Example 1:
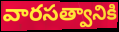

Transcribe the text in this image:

వారసత్వానికి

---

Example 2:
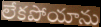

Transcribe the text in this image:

లేకపోయాను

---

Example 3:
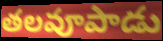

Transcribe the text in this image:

తలవూపాడు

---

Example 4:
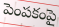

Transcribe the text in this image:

పెంపకంపై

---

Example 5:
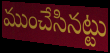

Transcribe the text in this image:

ముంచేసినట్టు